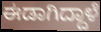
ಈಡಾಗಿದ್ದಾಳೆ